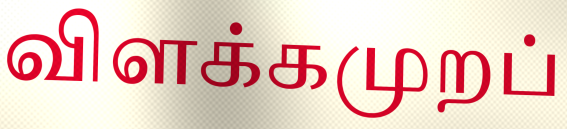
விளக்கமுறப்